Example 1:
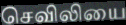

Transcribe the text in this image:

செவிலியை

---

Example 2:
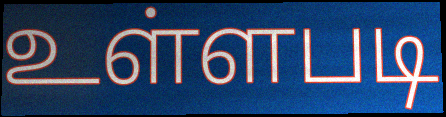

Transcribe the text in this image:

உள்ளபடி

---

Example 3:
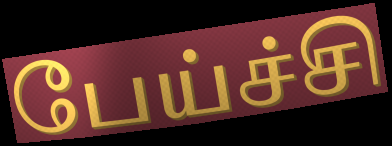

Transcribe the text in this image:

பேய்ச்சி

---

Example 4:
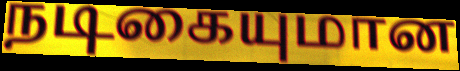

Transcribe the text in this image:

நடிகையுமான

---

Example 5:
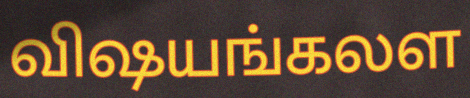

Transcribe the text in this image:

விஷயங்கலள